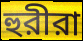
হুরীরা